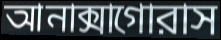
আনাক্সাগোরাস